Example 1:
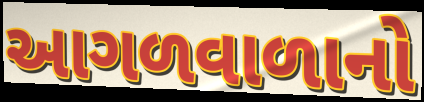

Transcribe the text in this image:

આગળવાળાનો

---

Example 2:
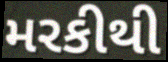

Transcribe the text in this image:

મરકીથી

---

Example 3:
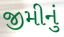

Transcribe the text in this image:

જીમીનું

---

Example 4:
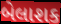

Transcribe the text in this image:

બેલાશક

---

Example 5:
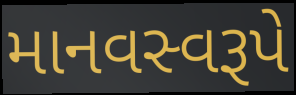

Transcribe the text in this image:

માનવસ્વરૂપે